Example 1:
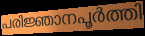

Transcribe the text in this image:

പരിജ്ഞാനപൂർത്തി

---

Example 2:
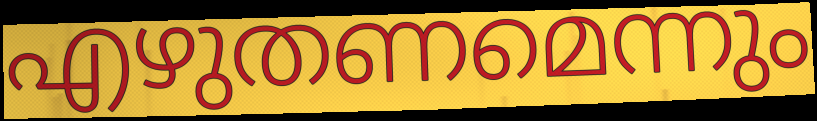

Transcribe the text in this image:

എഴുതണമെന്നും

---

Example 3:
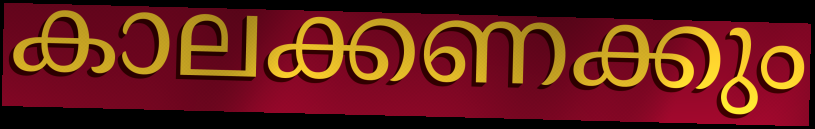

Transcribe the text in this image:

കാലക്കണക്കും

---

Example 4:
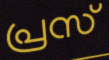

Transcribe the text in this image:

പ്രസ്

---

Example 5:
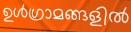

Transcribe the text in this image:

ഉൾഗ്രാമങ്ങളിൽ